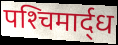
पश्चिमार्द्ध